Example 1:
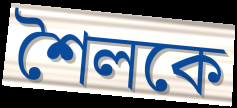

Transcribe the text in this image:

শৈলকে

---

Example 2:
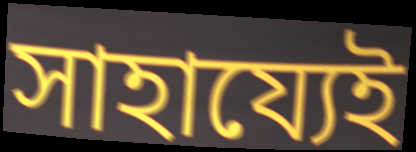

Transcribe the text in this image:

সাহায্যেই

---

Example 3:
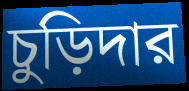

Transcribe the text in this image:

চুড়িদার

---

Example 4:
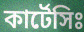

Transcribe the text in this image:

কার্টেসিঃ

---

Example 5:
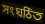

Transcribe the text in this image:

সংঘঠিত